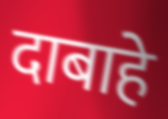
दाबाहे